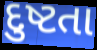
દુષ્ટતા